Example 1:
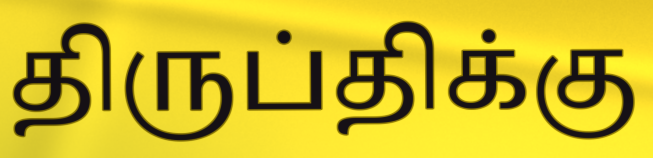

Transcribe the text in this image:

திருப்திக்கு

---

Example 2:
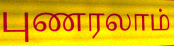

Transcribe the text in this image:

புணரலாம்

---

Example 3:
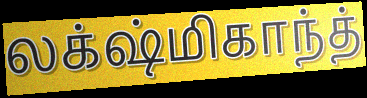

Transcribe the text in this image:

லக்‌ஷ்மிகாந்த்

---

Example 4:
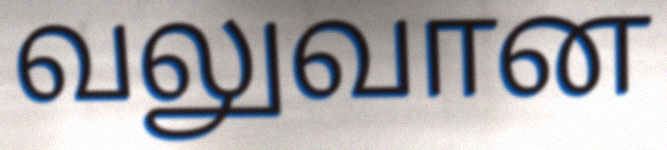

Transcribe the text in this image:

வலுவான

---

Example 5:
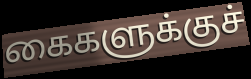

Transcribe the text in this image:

கைகளுக்குச்